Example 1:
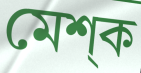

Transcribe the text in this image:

মেশ্ক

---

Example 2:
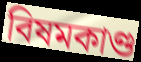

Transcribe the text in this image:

বিষমকাণ্ড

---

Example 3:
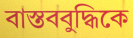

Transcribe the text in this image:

বাস্তববুদ্ধিকে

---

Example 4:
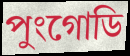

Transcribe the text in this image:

পুংগোডি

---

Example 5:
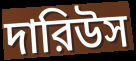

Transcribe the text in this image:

দারিউস